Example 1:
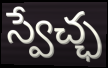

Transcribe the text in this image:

స్వేచ్ఛ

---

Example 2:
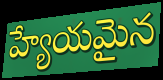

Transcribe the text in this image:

హ్యేయమైన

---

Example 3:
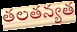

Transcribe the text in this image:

తలతన్యత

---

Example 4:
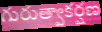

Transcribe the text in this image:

గురుత్వాకర్షణ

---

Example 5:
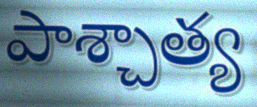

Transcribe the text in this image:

పాశ్చాత్య